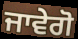
ਜਾਵੇਗੋ